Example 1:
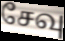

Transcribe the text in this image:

சேவு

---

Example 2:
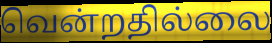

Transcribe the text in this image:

வென்றதில்லை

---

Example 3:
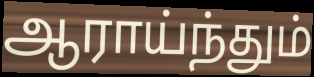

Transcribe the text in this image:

ஆராய்ந்தும்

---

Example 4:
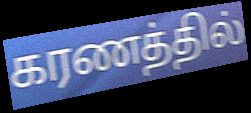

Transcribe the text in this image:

கரணத்தில்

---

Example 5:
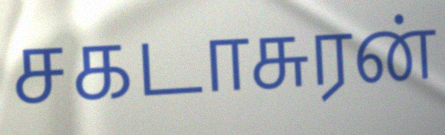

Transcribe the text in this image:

சகடாசுரன்